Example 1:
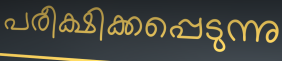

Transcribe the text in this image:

പരീക്ഷിക്കപ്പെടുന്നു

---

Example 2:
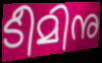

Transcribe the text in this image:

ടീമിനു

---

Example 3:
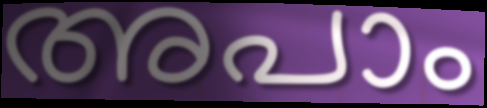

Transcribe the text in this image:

അപാം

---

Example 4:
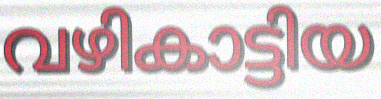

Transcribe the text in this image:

വഴികാട്ടിയ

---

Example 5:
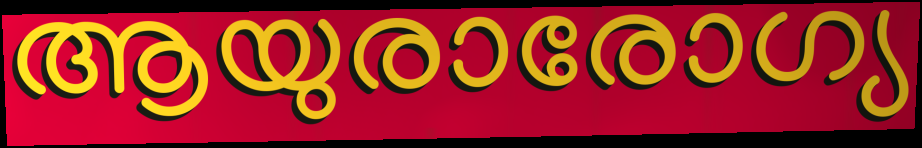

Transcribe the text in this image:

ആയുരാരോഗ്യ